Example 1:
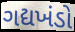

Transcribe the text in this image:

ગદ્યખંડો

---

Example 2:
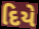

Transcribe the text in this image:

દિયે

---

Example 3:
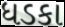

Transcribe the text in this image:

ધડકા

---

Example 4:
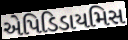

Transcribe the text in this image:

એપિડિડાયમિસ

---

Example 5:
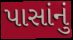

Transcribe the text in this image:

પાસાંનું